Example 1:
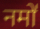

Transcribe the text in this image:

नमो॑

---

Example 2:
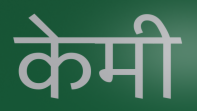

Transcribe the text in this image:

केमी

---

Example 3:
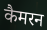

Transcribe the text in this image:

कैमरन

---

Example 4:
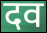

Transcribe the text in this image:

दव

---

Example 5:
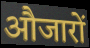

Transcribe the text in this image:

औजारों